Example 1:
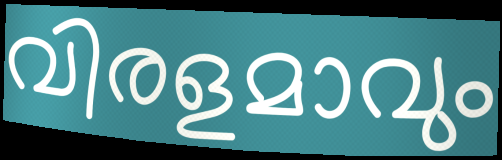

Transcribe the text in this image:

വിരളമാവും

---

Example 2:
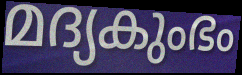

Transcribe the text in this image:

മദ്യകുംഭം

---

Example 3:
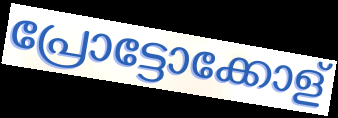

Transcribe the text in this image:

പ്രോട്ടോക്കോള്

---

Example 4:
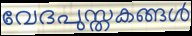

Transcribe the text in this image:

വേദപുസ്തകങ്ങൾ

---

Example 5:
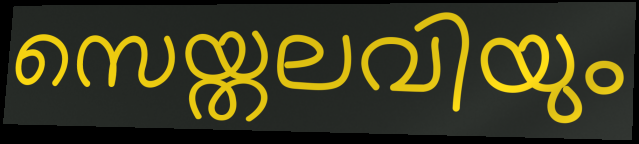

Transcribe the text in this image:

സെയ്തലവിയും